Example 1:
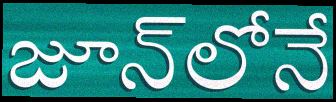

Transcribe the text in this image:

జూన్‌లోనే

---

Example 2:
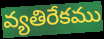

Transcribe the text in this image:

వ్యతిరేకము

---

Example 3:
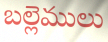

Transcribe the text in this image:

బల్లెములు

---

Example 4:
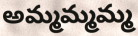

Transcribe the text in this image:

అమ్మమ్మమ్మ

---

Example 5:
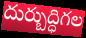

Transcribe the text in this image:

దుర్బుద్ధిగల